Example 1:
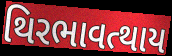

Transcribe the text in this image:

થિરભાવત્થાય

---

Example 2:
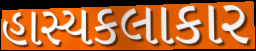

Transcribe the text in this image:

હાસ્યકલાકાર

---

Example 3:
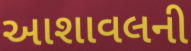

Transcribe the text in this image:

આશાવલની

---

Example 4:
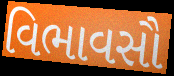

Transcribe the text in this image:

વિભાવસૌ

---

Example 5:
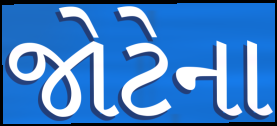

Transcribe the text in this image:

જોટેના